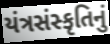
યંત્રસંસ્કૃતિનું